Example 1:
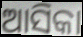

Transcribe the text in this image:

ଆସିକା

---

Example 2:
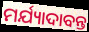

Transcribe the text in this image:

ମର୍ଯ୍ୟାଦାବନ୍ତ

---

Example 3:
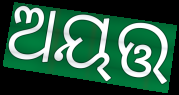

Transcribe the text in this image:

ଅୟତ୍ତ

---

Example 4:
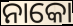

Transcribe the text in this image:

ନାକୋ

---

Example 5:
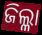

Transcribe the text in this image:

ଜିଲ୍ଳା